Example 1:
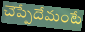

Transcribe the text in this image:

చెప్పేదేమంటే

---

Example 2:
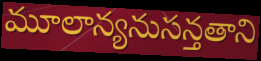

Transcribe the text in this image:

మూలాన్యనుసన్తతాని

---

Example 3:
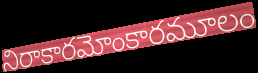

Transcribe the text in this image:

నిరాకారమోంకారమూలం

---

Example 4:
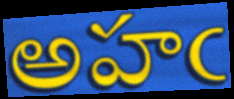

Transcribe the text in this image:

అహఁ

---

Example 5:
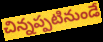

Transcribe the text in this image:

చిన్నప్పటినుండే